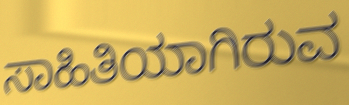
ಸಾಹಿತಿಯಾಗಿರುವ